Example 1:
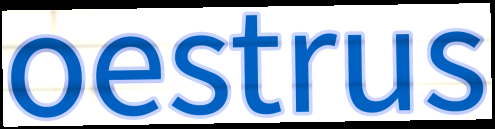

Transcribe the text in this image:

oestrus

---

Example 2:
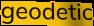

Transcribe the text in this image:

geodetic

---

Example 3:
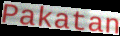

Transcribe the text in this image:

Pakatan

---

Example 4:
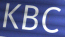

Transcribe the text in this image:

KBC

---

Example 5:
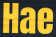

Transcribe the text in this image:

Hae